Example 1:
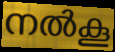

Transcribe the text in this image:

നൽകൂ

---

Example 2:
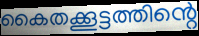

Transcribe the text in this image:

കൈതക്കൂട്ടത്തിന്റെ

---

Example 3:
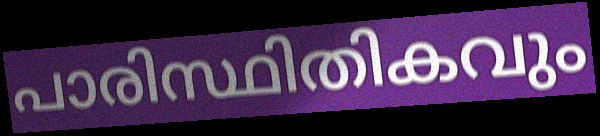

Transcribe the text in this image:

പാരിസ്ഥിതികവും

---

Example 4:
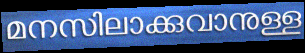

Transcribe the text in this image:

മനസിലാക്കുവാനുള്ള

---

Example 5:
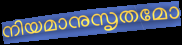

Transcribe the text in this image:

നിയമാനുസൃതമോ